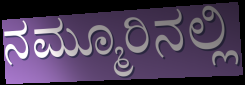
ನಮ್ಮೂರಿನಲ್ಲಿ